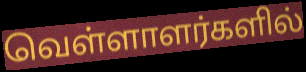
வெள்ளாளர்களில்